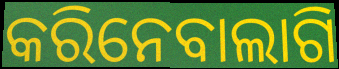
କରିନେବାଲାଗି